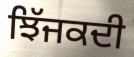
ਝਿੱਜਕਦੀ